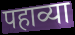
पहाव्या